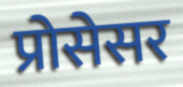
प्रोसेसर